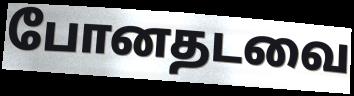
போனதடவை